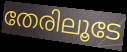
തേരിലൂടേ